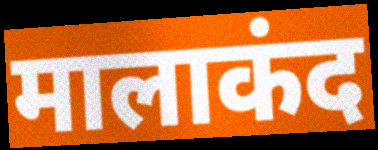
मालाकंद